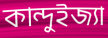
কান্দুইজ্যা